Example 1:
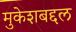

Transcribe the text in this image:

मुकेशबद्दल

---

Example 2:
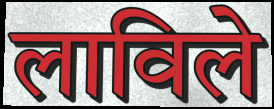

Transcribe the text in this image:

लाविले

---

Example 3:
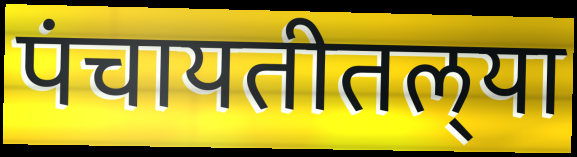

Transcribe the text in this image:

पंचायतीतल्या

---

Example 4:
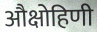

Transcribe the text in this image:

औक्षोहिणी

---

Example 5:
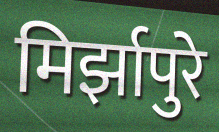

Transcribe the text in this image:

मिर्झापुरे